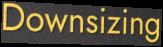
Downsizing